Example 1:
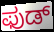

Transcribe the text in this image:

ಫುಡ್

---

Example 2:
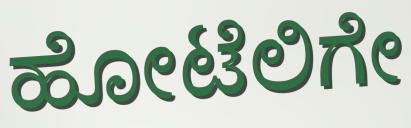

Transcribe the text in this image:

ಹೋಟೆಲಿಗೇ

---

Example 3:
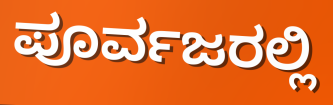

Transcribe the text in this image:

ಪೂರ್ವಜರಲ್ಲಿ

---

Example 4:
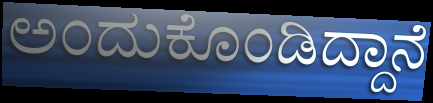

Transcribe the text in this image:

ಅಂದುಕೊಂಡಿದ್ದಾನೆ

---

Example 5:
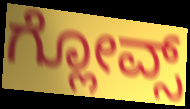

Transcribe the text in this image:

ಗ್ಲೋವ್ಸ್